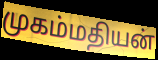
முகம்மதியன்